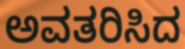
ಅವತರಿಸಿದ